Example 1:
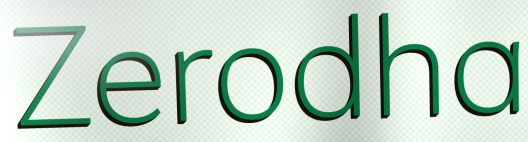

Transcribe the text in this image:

Zerodha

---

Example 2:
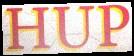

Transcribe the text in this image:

HUP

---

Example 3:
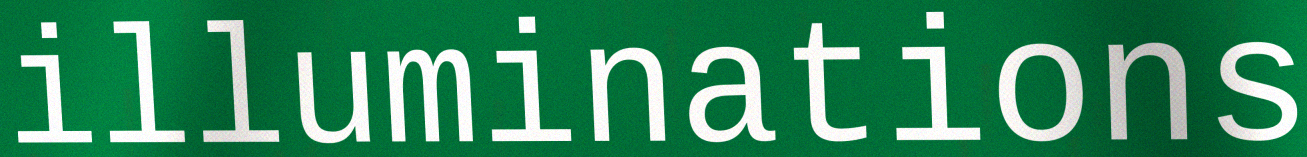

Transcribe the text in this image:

illuminations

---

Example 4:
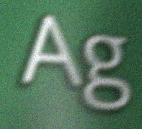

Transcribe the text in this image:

Ag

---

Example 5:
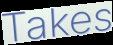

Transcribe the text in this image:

Takes